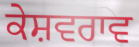
ਕੇਸ਼ਵਰਾਵ